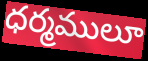
ధర్మములూ